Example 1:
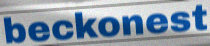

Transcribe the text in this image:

beckonest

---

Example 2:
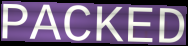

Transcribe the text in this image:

PACKED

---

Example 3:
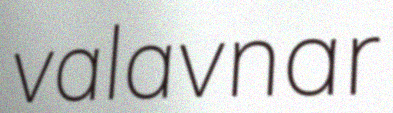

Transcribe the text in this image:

valavnar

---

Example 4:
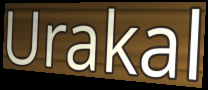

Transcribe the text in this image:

Urakal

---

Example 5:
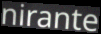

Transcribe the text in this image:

nirante